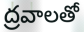
ద్రవాలతో